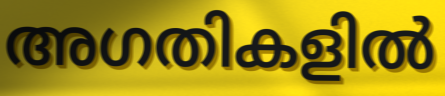
അഗതികളിൽ